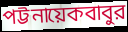
পট্টনায়েকবাবুর